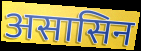
असासिन